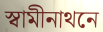
স্বামীনাথনে